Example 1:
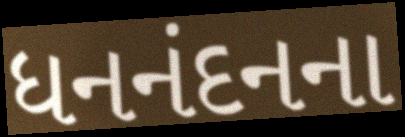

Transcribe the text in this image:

ધનનંદનના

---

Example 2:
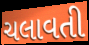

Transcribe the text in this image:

ચલાવતી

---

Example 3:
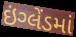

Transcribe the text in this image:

ઇંગ્લેંડમાં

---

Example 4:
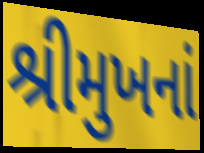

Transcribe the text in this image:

શ્રીમુખનાં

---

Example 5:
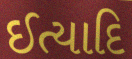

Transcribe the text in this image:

ઈત્યાદિ